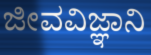
ಜೀವವಿಜ್ಞಾನಿ